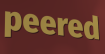
peered